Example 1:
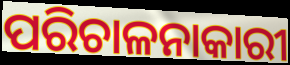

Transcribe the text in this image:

ପରିଚାଳନାକାରୀ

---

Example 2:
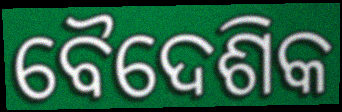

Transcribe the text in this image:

ବୈଦେଶିକ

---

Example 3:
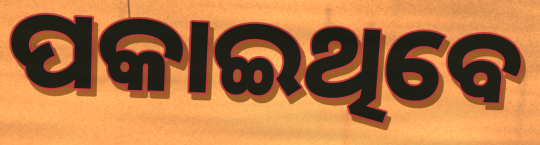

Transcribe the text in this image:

ପକାଇଥିବେ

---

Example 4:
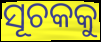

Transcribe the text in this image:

ସୂଚକକୁ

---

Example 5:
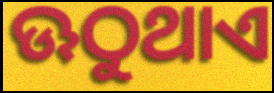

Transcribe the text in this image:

ଊଠୁଥାଏ